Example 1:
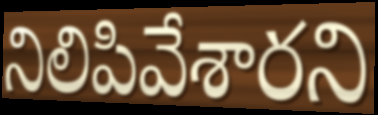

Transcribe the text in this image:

నిలిపివేశారని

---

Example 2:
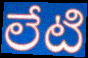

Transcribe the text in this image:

లేటి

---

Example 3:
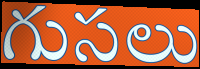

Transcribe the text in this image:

గుసలు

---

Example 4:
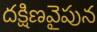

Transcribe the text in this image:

దక్షిణవైపున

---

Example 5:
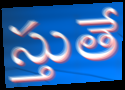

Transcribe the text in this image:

స్తుతే